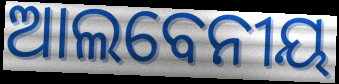
ଆଲବେନୀୟ